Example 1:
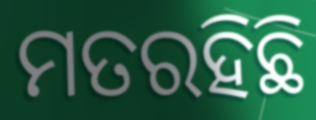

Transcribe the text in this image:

ମତରହିଛି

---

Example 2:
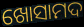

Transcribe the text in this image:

ଖୋସାମଦ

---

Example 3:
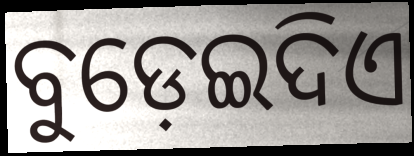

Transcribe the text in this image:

ବୁଡ଼େଇଦିଏ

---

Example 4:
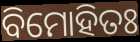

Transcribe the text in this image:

ବିମୋହିତଃ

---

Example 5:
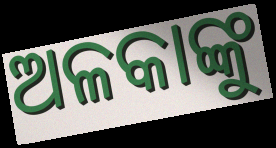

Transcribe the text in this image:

ଅଳକାଙ୍କୁ